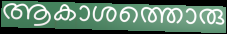
ആകാശത്തൊരു